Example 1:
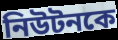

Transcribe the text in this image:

নিউটনকে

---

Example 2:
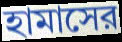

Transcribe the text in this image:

হামাসের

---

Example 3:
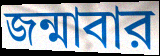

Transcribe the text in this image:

জন্মাবার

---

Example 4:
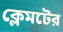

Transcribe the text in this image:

ক্লেমটের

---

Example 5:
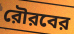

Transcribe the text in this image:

রৌরবের